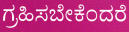
ಗ್ರಹಿಸಬೇಕೆಂದರೆ